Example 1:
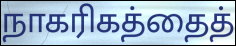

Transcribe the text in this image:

நாகரிகத்தைத்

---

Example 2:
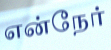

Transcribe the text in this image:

என்நேர்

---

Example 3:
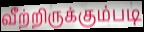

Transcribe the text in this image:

வீற்றிருக்கும்படி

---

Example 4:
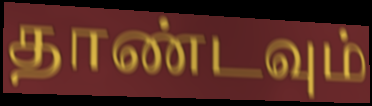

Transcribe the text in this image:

தாண்டவும்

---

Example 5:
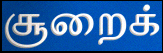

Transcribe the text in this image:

சூறைக்